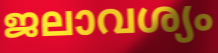
ജലാവശ്യം